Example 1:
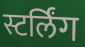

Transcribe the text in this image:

स्टर्लिंग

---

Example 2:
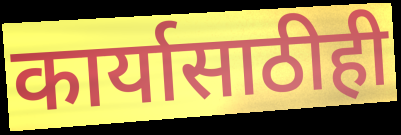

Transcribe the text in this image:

कार्यासाठीही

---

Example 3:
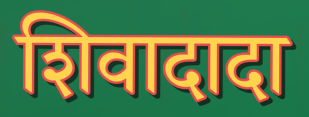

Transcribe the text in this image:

शिवादादा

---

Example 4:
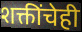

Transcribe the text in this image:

शक्तींचेही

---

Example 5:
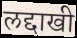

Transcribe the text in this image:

लद्दाखी